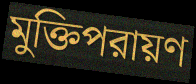
মুক্তিপরায়ণ